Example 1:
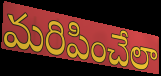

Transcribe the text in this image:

మరిపించేలా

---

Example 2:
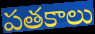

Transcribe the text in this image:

పతకాలు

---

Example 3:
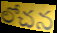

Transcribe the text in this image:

లోచన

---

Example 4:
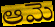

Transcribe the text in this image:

ఆమె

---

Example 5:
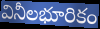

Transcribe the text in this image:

వినీలభూరికం